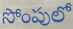
సోంపులో